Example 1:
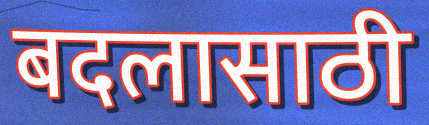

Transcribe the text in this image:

बदलासाठी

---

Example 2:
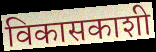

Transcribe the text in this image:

विकासकाशी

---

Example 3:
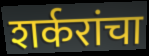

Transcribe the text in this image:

शर्करांचा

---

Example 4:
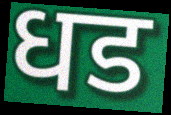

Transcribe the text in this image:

धड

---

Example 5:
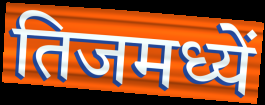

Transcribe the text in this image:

तिजमध्यें